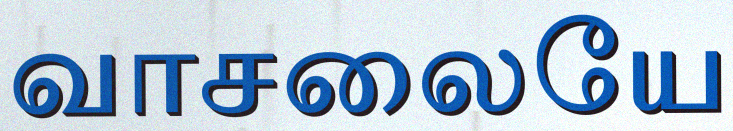
வாசலையே